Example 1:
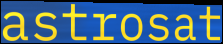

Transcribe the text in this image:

astrosat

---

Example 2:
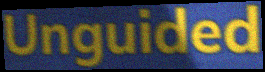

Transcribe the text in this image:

Unguided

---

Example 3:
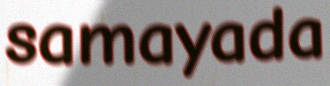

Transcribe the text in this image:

samayada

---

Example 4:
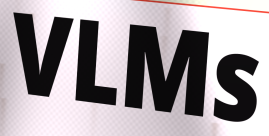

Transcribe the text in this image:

VLMs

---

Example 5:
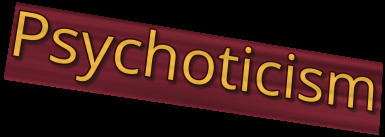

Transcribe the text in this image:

Psychoticism